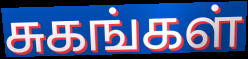
சுகங்கள்